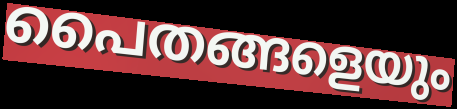
പൈതങ്ങളെയും